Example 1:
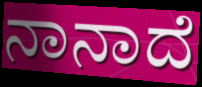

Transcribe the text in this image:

ನಾನಾದೆ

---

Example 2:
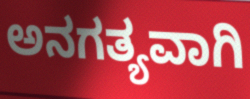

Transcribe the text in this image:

ಅನಗತ್ಯವಾಗಿ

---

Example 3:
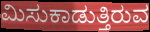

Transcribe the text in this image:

ಮಿಸುಕಾಡುತ್ತಿರುವ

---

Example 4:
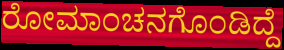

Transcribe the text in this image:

ರೋಮಾಂಚನಗೊಂಡಿದ್ದೆ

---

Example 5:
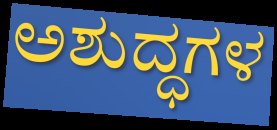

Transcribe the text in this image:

ಅಶುದ್ಧಗಳ